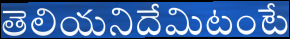
తెలియనిదేమిటంటే